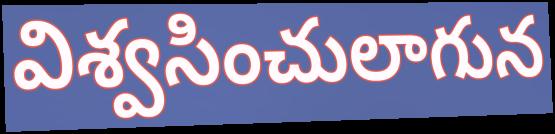
విశ్వసించులాగున